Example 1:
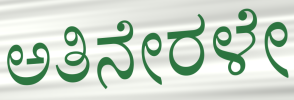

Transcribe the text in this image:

ಅತಿನೇರಳೇ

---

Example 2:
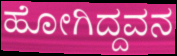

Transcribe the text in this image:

ಹೋಗಿದ್ದವನ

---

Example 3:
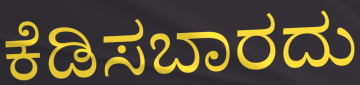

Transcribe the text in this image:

ಕೆಡಿಸಬಾರದು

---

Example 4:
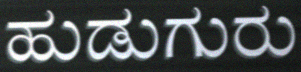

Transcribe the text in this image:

ಹುಡುಗುರು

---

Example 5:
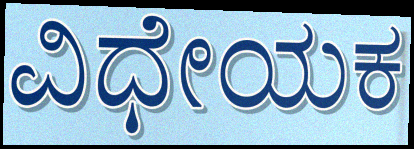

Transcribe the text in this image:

ವಿಧೇಯಕ